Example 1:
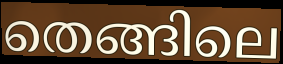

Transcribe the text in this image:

തെങ്ങിലെ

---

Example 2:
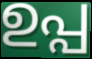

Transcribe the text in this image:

ഉപ്പ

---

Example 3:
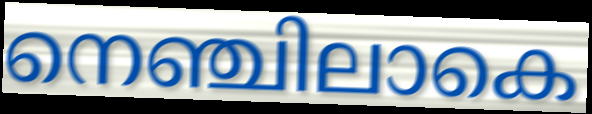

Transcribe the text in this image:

നെഞ്ചിലാകെ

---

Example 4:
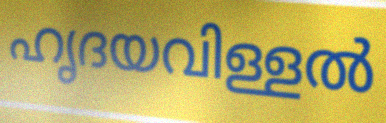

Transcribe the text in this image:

ഹൃദയവിള്ളൽ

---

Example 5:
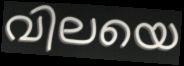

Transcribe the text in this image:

വിലയെ